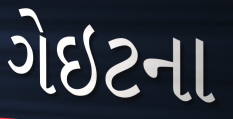
ગેઇટના